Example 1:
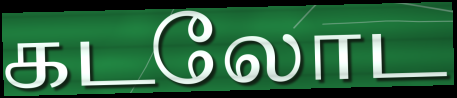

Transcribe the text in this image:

கடலோட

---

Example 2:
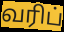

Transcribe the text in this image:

வரிப்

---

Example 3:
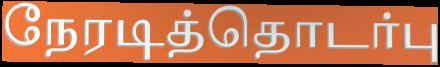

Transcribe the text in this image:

நேரடித்தொடர்பு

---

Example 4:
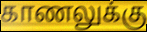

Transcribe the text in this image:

காணலுக்கு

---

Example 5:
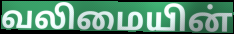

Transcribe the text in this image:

வலிமையின்